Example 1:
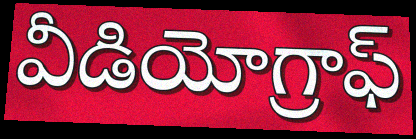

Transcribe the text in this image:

వీడియోగ్రాఫ్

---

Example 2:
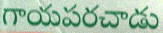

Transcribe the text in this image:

గాయపరచాడు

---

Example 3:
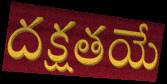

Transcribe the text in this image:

దక్షతయే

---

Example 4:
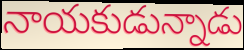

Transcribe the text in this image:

నాయకుడున్నాడు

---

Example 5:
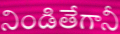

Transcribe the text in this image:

నిండితేగానీ